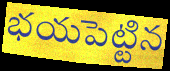
భయపెట్టిన